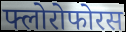
फ्लोरोफोरस